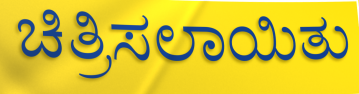
ಚಿತ್ರಿಸಲಾಯಿತು